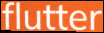
flutter